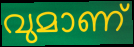
വുമാണ്